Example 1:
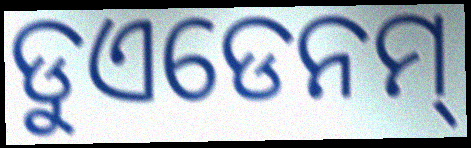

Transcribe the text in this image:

ଡୁଏଡେନମ୍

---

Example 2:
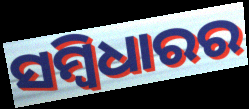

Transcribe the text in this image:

ସମ୍ବିଧାରର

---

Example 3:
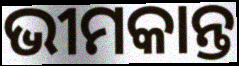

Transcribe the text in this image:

ଭୀମକାନ୍ତ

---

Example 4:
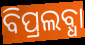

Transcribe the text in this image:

ବିପ୍ରଲବ୍ଧା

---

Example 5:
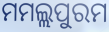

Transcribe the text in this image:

ମମଲ୍ଲପୁରମ